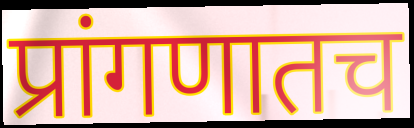
प्रांगणातच